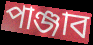
পাঞ্জাব